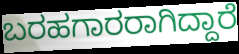
ಬರಹಗಾರರಾಗಿದ್ದಾರೆ